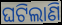
ଘଟିଲାଣି